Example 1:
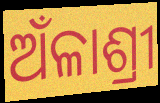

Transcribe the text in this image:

ଅଁଳାଶ୍ରୀ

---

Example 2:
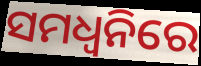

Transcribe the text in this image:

ସମଧ୍ୱନିରେ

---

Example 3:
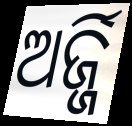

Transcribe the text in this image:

ଅର୍ଜ୍ଜି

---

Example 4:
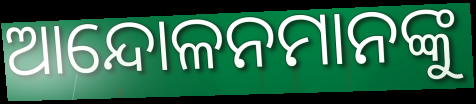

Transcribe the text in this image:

ଆନ୍ଦୋଳନମାନଙ୍କୁ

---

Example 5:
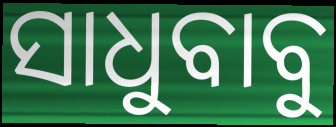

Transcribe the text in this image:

ସାଧୁବାବୁ